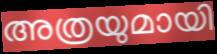
അത്രയുമായി